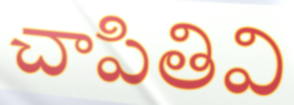
చాపితివి